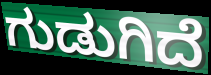
ಗುಡುಗಿದೆ